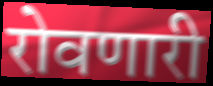
रोवणारी